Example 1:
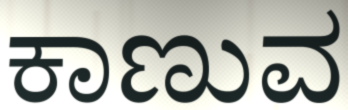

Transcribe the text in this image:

ಕಾಣುವ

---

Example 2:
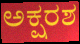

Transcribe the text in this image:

ಅಕ್ಷರಶ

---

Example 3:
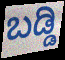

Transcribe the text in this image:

ಬಡ್ಡಿ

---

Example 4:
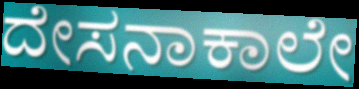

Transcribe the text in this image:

ದೇಸನಾಕಾಲೇ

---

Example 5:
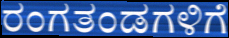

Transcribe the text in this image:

ರಂಗತಂಡಗಳಿಗೆ